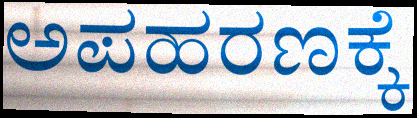
ಅಪಹರಣಕ್ಕೆ